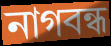
নাগবন্ধ